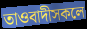
তাওবাদীসকলে